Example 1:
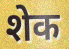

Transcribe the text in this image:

शेक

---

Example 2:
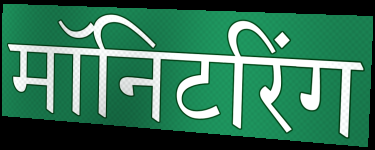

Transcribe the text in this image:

मॉनिटरिंग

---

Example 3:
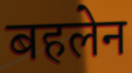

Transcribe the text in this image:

बहलेन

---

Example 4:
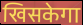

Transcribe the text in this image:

खिसकेगा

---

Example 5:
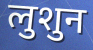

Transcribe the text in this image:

लुशुन